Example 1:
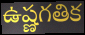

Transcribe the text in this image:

ఉష్ణగతిక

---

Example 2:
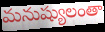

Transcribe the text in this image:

మనుష్యులంతా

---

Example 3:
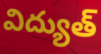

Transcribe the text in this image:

విద్యుత్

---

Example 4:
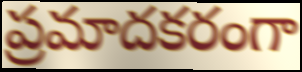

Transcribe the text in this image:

ప్రమాదకరంగా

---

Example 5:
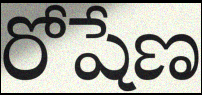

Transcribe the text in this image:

రోషేణ